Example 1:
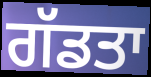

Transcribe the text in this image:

ਗੱਡਤਾ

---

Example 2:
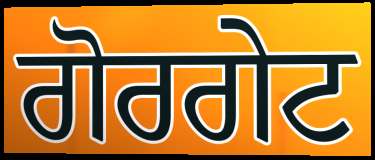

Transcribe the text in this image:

ਗੋਰਗੇਟ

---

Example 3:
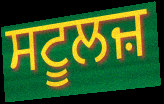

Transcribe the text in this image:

ਸਟੂਲਜ਼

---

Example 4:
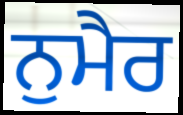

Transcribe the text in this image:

ਨੁਮੈਰ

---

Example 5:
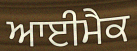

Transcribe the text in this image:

ਆਈਮੈਕ